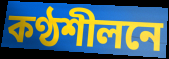
কণ্ঠশীলনে